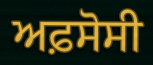
ਅਫ਼ਸੋਸੀ